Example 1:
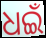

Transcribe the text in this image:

ଧଇଁ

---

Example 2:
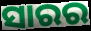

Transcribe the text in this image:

ସାରର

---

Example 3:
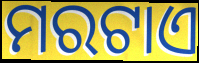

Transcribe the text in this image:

ମରଟାଏ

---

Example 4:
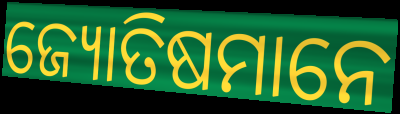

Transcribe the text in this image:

ଜ୍ୟୋତିଷମାନେ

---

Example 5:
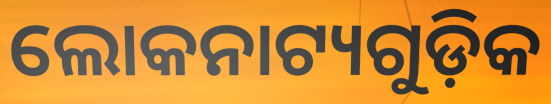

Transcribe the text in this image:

ଲୋକନାଟ୍ୟଗୁଡ଼ିକ